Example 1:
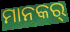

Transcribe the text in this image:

ମାନକର୍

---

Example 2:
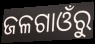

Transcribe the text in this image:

ଜଳଗାଓଁରୁ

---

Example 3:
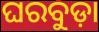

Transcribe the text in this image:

ଘରବୁଡ଼ା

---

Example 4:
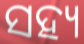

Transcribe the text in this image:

ସହ୍ଯ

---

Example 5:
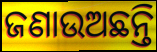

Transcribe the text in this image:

ଜଣାଉଅଛନ୍ତି